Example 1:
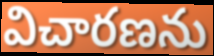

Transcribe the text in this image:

విచారణను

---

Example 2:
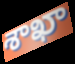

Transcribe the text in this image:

శాఖా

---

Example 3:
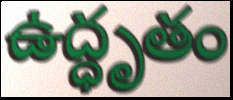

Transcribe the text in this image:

ఉద్ధృతం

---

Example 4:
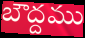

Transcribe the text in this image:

బౌద్దము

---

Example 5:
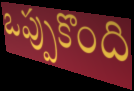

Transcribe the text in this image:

ఒప్పుకొంది